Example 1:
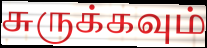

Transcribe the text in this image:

சுருக்கவும்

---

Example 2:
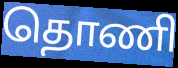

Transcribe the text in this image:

தொணி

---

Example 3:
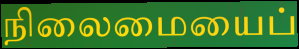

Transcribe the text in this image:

நிலைமையைப்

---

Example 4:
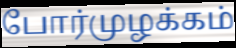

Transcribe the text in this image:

போர்முழக்கம்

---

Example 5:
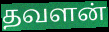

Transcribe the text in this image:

தவளன்